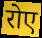
रोए